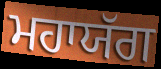
ਮਹਾਯੱਗ